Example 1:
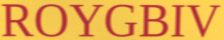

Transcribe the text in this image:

ROYGBIV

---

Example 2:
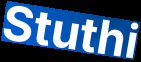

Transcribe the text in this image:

Stuthi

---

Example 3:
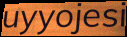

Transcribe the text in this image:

uyyojesi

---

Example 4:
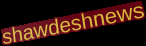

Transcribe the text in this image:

shawdeshnews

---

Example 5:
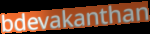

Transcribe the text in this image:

bdevakanthan